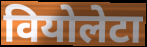
वियोलेटा